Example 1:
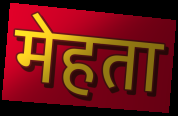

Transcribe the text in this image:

मेहता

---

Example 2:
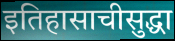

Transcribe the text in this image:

इतिहासाचीसुद्धा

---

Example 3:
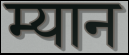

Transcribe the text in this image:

म्यान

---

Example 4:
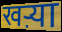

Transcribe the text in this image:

खऱ्‍या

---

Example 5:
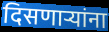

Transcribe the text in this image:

दिसणाऱ्यांना